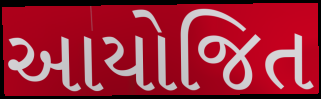
આયોજિત